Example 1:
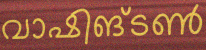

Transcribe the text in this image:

വാഷിങ്ടൺ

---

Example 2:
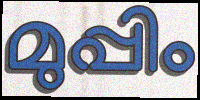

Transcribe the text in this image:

മുപ്പിം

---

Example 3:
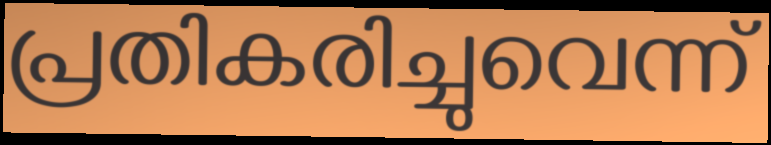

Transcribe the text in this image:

പ്രതികരിച്ചുവെന്ന്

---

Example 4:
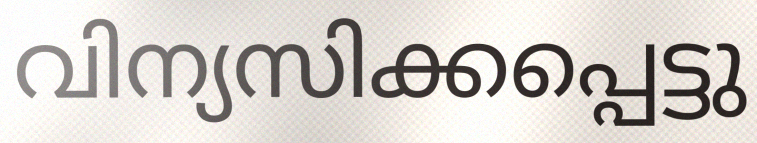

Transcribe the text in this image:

വിന്യസിക്കപ്പെട്ടു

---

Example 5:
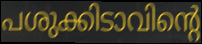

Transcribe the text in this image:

പശുക്കിടാവിന്റെ